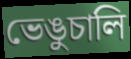
ভেঙুচালি